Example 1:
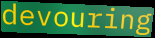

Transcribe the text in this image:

devouring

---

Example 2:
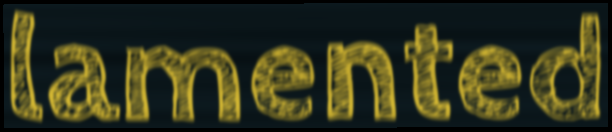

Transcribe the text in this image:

lamented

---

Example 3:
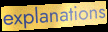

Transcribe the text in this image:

explanations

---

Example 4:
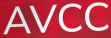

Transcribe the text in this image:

AVCC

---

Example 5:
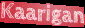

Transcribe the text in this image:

Kaarigan